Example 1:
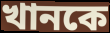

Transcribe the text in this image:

খানকে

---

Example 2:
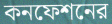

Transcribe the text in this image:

কনফেশনের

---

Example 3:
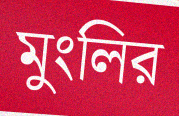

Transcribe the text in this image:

মুংলির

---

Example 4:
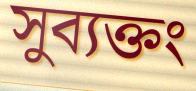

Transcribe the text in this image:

সুব্যক্তং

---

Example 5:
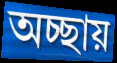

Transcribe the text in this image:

অচ্ছায়